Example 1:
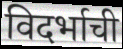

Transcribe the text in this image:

विदर्भाची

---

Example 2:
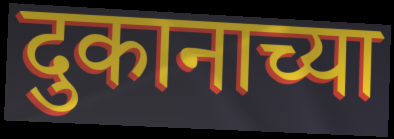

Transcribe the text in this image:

दुकानाच्या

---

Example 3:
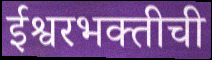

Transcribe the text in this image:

ईश्वरभक्तीची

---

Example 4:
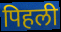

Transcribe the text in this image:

पिहली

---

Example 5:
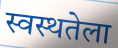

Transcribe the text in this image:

स्वस्थतेला